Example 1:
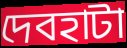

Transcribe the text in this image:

দেবহাটা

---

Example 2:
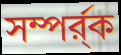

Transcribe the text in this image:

সম্পর্র্ক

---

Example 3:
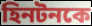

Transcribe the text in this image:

হিনটনকে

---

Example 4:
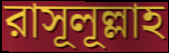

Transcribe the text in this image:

রাসূলূল্লাহ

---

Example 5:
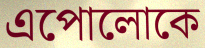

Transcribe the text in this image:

এপোলোকে